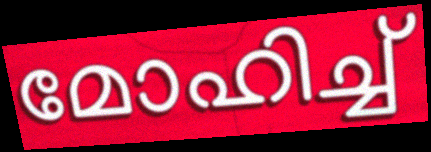
മോഹിച്ച്